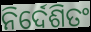
ନିର୍ଦେଶିତଂ